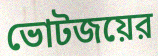
ভোটজয়ের